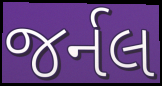
જર્નલ